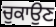
ਚੁਕਾਉਣ